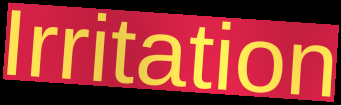
Irritation